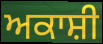
ਅਕਾਸ਼ੀ